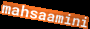
mahsaamini